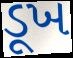
ડૂખ